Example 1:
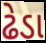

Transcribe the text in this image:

ઢેડા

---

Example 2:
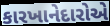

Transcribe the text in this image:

કારખાનેદારોએ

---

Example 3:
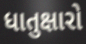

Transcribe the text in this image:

ધાતુક્ષારો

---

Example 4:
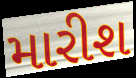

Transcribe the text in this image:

મારીશ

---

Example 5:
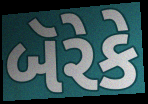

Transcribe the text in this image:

બૅરેકે